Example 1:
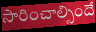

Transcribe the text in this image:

సారించాల్సిందే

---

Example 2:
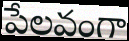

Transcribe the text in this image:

పేలవంగా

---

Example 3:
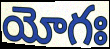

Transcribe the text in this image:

యోగః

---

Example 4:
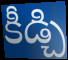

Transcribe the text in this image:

కీడ్చి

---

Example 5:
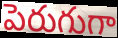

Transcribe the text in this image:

పెరుగుగా